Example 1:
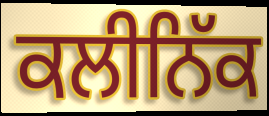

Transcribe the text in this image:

ਕਲੀਨਿੱਕ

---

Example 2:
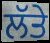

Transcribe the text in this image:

ਲੱਤੇ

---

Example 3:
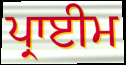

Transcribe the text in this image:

ਪ੍ਰਾਈਮ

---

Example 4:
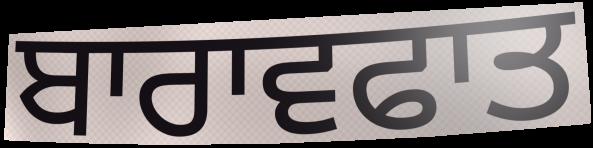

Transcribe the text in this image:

ਬਾਰਾਵਫਾਤ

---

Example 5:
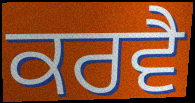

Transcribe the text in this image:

ਕਰਵੈ